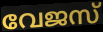
വേജസ്